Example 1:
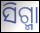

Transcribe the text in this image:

ସିଗ୍ମା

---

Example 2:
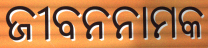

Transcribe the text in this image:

ଜୀବନନାମକ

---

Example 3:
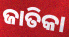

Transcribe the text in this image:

ଜାତିକା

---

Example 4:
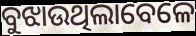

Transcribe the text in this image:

ବୁଝାଉଥିଲାବେଳେ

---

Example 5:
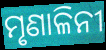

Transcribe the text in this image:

ମୃଣାଳିନୀ